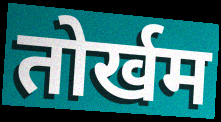
तोर्खम